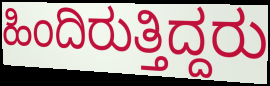
ಹಿಂದಿರುತ್ತಿದ್ದರು